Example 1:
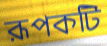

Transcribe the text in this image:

রূপকটি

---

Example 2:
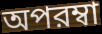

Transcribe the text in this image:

অপরম্বা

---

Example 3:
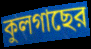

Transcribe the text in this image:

কুলগাছের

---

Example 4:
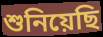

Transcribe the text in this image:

শুনিয়েছি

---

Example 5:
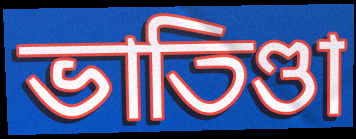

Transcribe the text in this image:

ভাতিণ্ডা